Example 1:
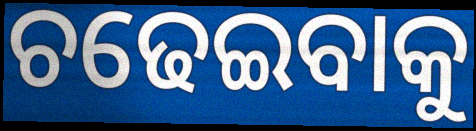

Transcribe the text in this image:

ଚଢେଇବାକୁ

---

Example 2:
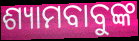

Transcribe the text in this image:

ଶ୍ୟାମବାବୁଙ୍କ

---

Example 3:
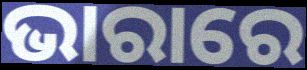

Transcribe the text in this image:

ଭାରାରେ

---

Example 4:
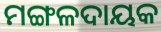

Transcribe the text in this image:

ମଙ୍ଗଳଦାୟକ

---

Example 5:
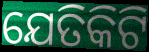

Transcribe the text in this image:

ଯେତିକିଟି